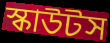
স্কাউটস